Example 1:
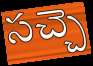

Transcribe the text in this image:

సచ్చె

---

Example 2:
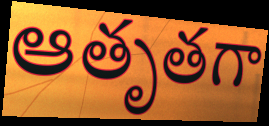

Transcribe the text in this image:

ఆతృతగా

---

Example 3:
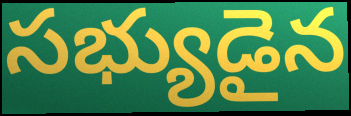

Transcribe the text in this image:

సభ్యుడైన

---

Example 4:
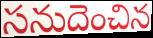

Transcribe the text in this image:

సనుదెంచిన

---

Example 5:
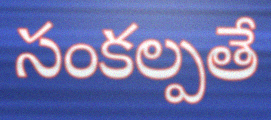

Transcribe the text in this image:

సంకల్పతే